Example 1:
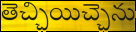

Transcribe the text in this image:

తెచ్చియిచ్చెను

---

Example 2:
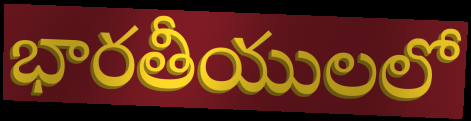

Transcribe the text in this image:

భారతీయులలో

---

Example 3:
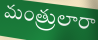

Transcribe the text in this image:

మంత్రులారా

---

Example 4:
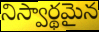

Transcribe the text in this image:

నిస్వార్థమైన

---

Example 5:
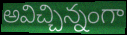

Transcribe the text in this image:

అవిచ్చిన్నంగా